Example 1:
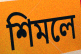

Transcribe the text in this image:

শিমলে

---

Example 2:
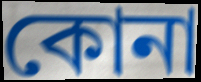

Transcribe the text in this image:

কোনা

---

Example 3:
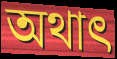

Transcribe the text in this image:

অথাৎ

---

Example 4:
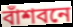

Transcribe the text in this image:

বাঁশবনে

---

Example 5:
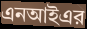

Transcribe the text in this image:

এনআইএর